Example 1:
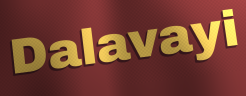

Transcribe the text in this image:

Dalavayi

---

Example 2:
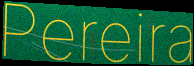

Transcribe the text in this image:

Pereira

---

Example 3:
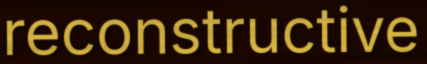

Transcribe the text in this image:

reconstructive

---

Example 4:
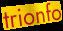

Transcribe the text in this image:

trionfo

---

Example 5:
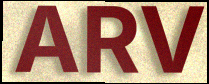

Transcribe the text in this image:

ARV